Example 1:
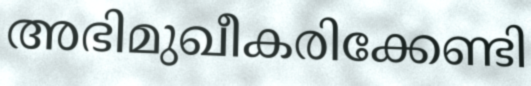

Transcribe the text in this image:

അഭിമുഖീകരിക്കേണ്ടി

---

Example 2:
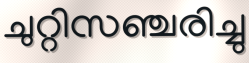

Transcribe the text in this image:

ചുറ്റിസഞ്ചരിച്ചു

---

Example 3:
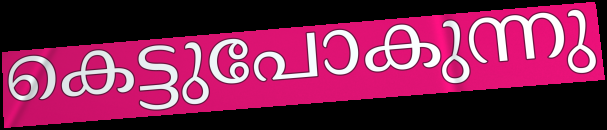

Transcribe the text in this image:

കെട്ടുപോകുന്നു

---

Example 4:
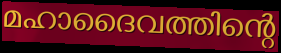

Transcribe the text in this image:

മഹാദൈവത്തിന്റെ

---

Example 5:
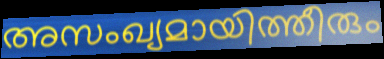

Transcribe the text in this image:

അസംഖ്യമായിത്തീരും